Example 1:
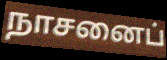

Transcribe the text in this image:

நாசனைப்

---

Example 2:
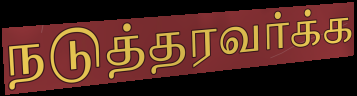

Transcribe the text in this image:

நடுத்தரவர்க்க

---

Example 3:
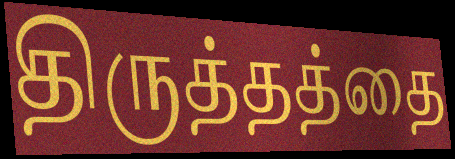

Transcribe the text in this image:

திருத்தத்தை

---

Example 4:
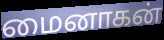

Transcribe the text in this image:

மைனாகன்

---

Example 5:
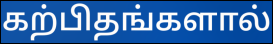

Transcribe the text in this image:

கற்பிதங்களால்